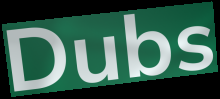
Dubs